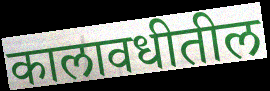
कालावधीतील